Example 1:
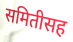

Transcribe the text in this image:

समितीसह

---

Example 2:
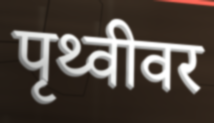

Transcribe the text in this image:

पृथ्वीवर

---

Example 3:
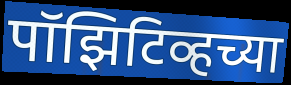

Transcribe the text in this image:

पॉझिटिव्हच्या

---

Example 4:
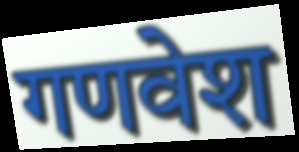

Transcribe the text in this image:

गणवेश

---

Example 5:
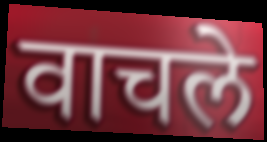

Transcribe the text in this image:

वाचले